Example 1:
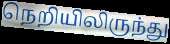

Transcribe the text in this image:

நெறியிலிருந்து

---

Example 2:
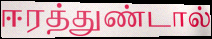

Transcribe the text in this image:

ஈரத்துண்டால்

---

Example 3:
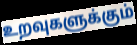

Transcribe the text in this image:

உறவுகளுக்கும்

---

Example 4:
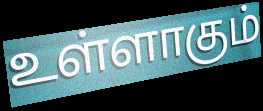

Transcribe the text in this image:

உள்ளாகும்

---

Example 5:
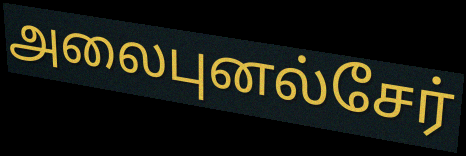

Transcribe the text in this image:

அலைபுனல்சேர்